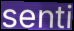
senti